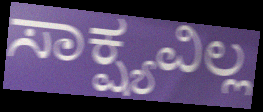
ಸಾಕ್ಷ್ಯವಿಲ್ಲ